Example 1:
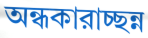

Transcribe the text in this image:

অন্ধকারাচ্ছন্ন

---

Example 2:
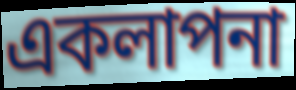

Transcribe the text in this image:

একলাপনা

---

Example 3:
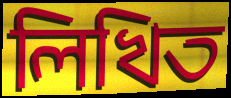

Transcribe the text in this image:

লিখিত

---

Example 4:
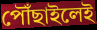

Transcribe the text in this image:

পৌঁছাইলেই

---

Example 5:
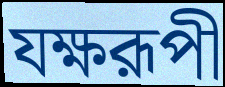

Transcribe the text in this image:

যক্ষরূপী